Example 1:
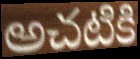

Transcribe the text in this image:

అచటికి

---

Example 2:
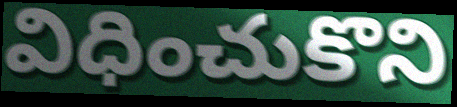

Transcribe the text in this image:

విధించుకొని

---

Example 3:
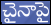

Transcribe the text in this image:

చైనాపై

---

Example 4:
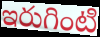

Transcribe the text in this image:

ఇరుగింటి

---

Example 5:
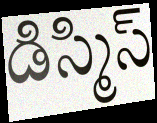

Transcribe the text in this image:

డిస్మిస్